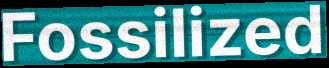
Fossilized